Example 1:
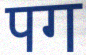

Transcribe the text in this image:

पग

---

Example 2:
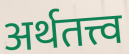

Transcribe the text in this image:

अर्थतत्त्व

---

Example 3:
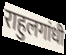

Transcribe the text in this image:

राहुलगांधी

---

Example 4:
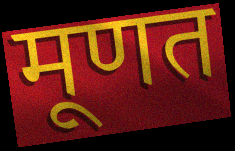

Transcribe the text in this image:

मूणत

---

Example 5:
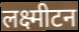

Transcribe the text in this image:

लक्ष्मीटन